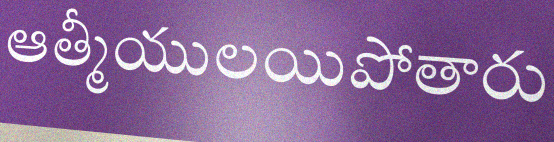
ఆత్మీయులయిపోతారు